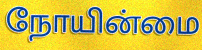
நோயின்மை